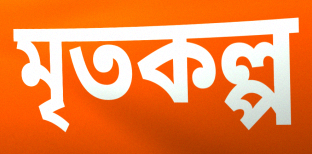
মৃতকল্প